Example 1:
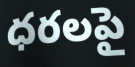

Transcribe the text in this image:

ధరలపై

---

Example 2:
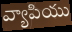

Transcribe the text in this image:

వ్యాపియు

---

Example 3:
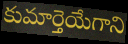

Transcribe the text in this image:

కుమార్తెయేగాని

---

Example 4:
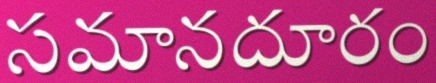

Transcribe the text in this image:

సమానదూరం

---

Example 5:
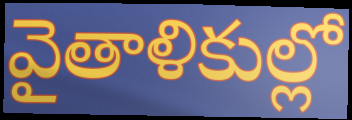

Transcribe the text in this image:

వైతాళికుల్లో